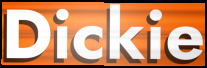
Dickie